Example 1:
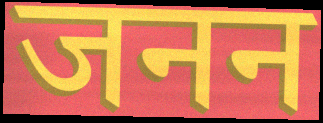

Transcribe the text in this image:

जनन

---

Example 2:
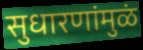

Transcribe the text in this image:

सुधारणांमुळं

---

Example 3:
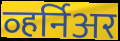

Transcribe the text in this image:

व्हर्निअर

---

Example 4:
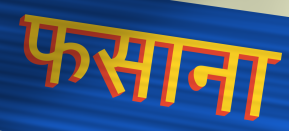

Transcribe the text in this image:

फसाना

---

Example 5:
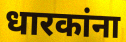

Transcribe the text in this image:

धारकांना